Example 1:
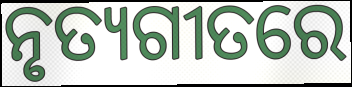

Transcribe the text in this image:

ନୃତ୍ୟଗୀତରେ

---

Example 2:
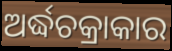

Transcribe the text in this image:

ଅର୍ଦ୍ଧଚକ୍ରାକାର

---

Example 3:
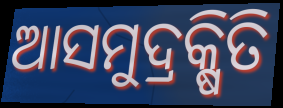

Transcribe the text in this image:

ଆସମୁଦ୍ରକ୍ଷିତି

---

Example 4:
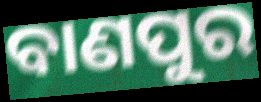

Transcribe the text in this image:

ବାଣପୁର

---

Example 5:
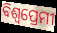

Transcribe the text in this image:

ବିଶ୍ବପ୍ରେମୀ